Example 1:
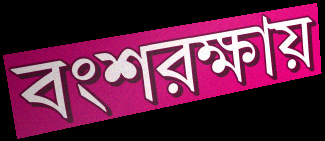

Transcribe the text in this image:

বংশরক্ষায়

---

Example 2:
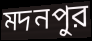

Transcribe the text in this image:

মদনপুর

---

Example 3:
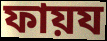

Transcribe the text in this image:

ফায়য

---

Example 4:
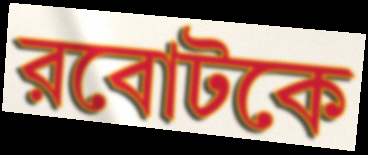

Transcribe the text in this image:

রবোটকে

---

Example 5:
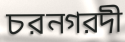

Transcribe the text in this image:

চরনগরদী